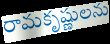
రామకృష్ణులను